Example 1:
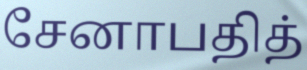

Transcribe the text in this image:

சேனாபதித்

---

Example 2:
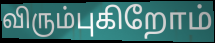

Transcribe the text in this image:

விரும்புகிறோம்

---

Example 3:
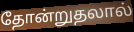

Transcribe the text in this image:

தோன்றுதலால்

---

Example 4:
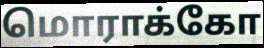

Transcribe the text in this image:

மொராக்கோ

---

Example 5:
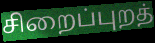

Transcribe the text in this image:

சிறைப்புறத்